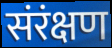
संरंक्षण